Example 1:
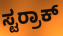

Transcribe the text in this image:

ಸ್ಟರ್ರಾಕ್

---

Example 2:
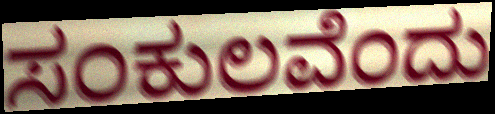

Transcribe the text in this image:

ಸಂಕುಲವೆಂದು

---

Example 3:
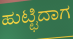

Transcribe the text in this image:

ಹುಟ್ಟಿದಾಗ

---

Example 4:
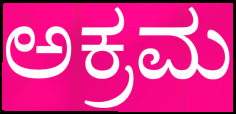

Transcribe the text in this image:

ಅಕ್ರಮ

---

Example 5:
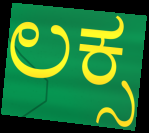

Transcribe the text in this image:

ಲಕ್ಸ